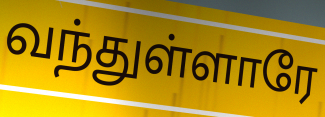
வந்துள்ளாரே